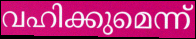
വഹിക്കുമെന്ന്